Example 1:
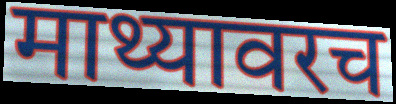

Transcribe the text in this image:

माथ्यावरच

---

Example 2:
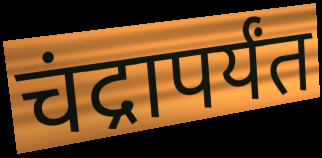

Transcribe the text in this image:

चंद्रापर्यंत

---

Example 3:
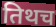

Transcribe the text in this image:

तिथच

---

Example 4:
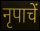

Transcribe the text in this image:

नृपाचें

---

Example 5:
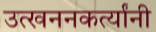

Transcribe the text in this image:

उत्खननकर्त्यांनी